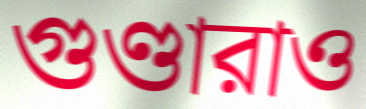
গুণ্ডারাও